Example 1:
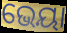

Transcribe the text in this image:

ଭେୟା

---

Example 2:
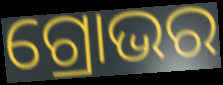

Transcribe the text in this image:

ଗ୍ରୋଭର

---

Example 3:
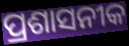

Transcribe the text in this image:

ପ୍ରଶାସନୀକ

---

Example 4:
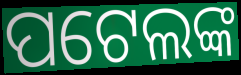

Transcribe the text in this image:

ପଟେଲଙ୍କ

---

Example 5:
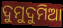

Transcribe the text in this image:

ଦୁମୁଦୁମିଆ